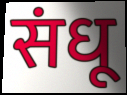
संधू